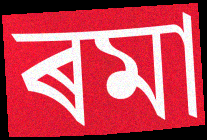
ৰমা